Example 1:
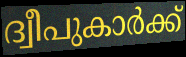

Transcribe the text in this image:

ദ്വീപുകാർക്ക്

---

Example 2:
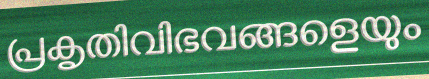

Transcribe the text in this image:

പ്രകൃതിവിഭവങ്ങളെയും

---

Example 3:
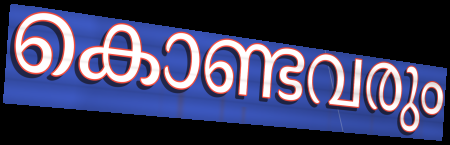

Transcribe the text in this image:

കൊണ്ടവരും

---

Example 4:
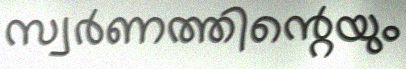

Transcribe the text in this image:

സ്വർണത്തിന്റെയും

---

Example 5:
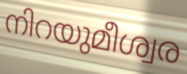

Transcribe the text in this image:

നിറയുമീശ്വര